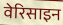
वेरिसाइन